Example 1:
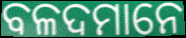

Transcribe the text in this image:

ବଳଦମାନେ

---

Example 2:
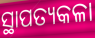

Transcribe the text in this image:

ସ୍ଥାପତ୍ୟକଳା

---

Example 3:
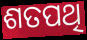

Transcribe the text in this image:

ଶତପଥି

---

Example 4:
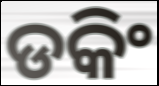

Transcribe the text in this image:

ଡକିଂ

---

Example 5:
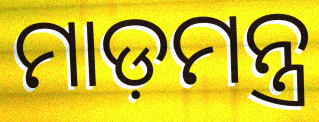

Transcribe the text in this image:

ମାଡ଼ମନ୍ତ୍ର